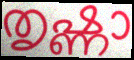
തൃഷ്ണാ